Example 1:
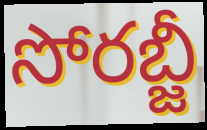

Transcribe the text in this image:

సోరబ్జీ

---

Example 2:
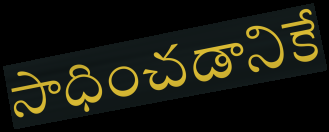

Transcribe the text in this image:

సాధించడానికే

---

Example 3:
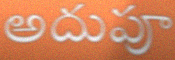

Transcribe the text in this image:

అదుపూ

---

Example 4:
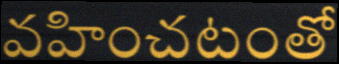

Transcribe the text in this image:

వహించటంతో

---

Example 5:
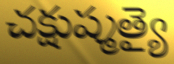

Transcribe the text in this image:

చక్షుష్మత్యై